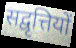
सद्वृत्तियों